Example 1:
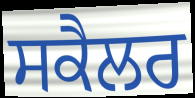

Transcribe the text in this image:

ਸਕੈਲਰ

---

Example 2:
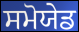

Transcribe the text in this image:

ਸਮੋਯੇਡ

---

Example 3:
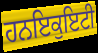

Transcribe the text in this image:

ਹਨਇਕੁਇਟੀ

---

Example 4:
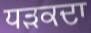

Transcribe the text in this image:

ਧੜਕਦਾ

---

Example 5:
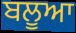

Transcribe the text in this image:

ਬਲੂਆ